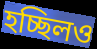
হচ্ছিলও